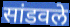
सांडवले